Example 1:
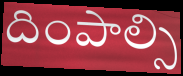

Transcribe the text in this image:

దింపాల్సి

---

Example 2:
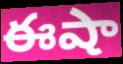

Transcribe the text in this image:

ఈషా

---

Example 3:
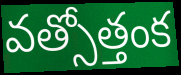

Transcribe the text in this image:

వత్సోత్తంక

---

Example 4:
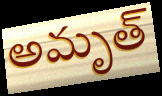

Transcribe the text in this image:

అమృత్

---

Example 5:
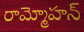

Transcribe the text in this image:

రామ్మోహన్